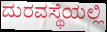
ದುರವಸ್ಥೆಯಲ್ಲಿ